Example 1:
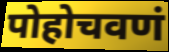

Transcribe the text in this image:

पोहोचवणं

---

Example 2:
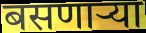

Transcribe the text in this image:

बसणार्‍या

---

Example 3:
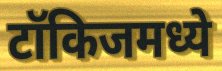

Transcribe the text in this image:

टॉकिजमध्ये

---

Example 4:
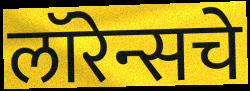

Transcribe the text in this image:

लॉरेन्सचे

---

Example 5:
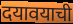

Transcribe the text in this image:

दयावयाची